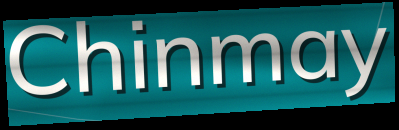
Chinmay